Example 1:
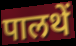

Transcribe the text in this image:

पालथें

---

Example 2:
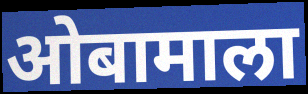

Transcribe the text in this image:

ओबामाला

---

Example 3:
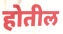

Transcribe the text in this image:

होतील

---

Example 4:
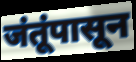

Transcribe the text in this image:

जंतूंपासून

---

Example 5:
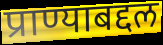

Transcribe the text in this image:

प्राण्याबद्दल